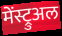
मेंस्ट्रुअल